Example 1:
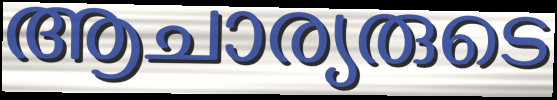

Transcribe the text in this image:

ആചാര്യരുടെ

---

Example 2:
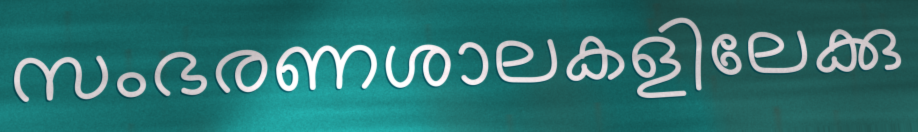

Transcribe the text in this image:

സംഭരണശാലകളിലേക്കു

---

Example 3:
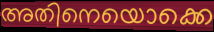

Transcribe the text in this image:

അതിനെയൊക്കെ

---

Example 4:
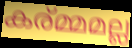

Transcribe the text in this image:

കര്മ്മമല്ല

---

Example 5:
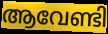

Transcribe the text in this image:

ആവേണ്ടി